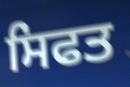
ਸਿਫਤ